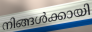
നിങ്ങൾക്കായി